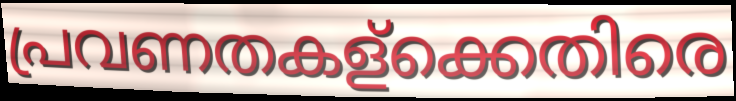
പ്രവണതകള്ക്കെതിരെ